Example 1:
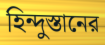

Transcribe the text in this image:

হিন্দুস্তানের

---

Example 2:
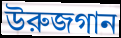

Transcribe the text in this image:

উরুজগান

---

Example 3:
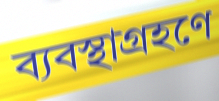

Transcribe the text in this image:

ব্যবস্থাগ্রহণে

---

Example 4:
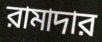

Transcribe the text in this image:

রামাদার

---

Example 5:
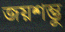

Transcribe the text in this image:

জয়শম্ভু